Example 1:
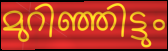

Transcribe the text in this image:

മുറിഞ്ഞിട്ടും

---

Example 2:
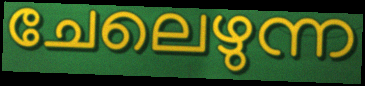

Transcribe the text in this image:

ചേലെഴുന്ന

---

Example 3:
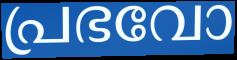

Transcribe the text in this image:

പ്രഭവോ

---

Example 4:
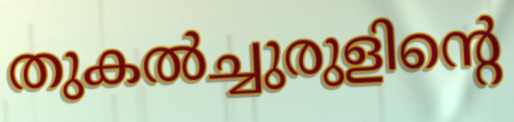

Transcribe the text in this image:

തുകൽച്ചുരുളിന്റെ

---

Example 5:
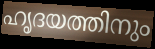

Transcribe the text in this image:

ഹൃദയത്തിനും